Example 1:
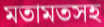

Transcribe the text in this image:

মতামতসহ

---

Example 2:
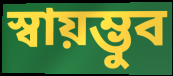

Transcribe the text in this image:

স্বায়ম্ভুব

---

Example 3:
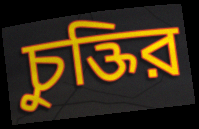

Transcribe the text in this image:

চুক্তির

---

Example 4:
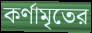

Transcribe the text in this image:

কর্ণামৃতের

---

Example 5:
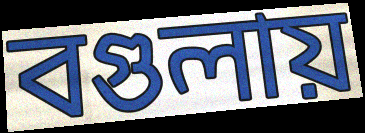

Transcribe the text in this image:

বগুলায়